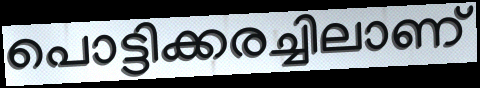
പൊട്ടിക്കരച്ചിലാണ്